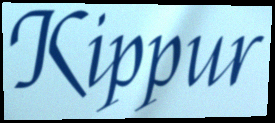
Kippur